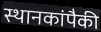
स्थानकांपैकी